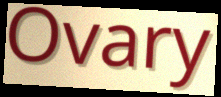
Ovary